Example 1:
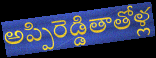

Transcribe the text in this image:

అప్పిరెడ్డితాతోళ్ల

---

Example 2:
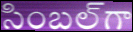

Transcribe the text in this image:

సింబల్‌గా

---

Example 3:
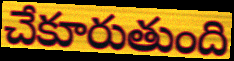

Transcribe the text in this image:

చేకూరుతుంది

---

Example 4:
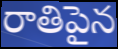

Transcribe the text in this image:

రాతిపైన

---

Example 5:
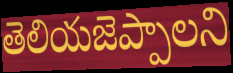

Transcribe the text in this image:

తెలియజెప్పాలని